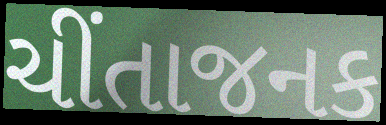
ચીંતાજનક